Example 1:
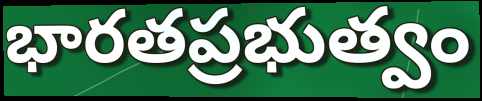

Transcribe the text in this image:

భారతప్రభుత్వం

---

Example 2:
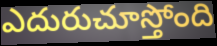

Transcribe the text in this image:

ఎదురుచూస్తోంది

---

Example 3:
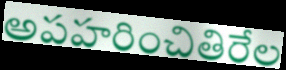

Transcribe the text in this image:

అపహరించితిరేల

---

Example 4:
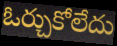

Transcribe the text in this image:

ఓర్చుకోలేదు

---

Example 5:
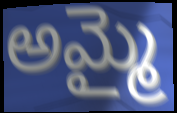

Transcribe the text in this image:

అమ్మై